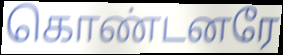
கொண்டனரே